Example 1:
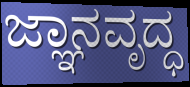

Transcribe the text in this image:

ಜ್ಞಾನವೃದ್ಧ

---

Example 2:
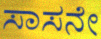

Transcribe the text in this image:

ಸಾಸನೇ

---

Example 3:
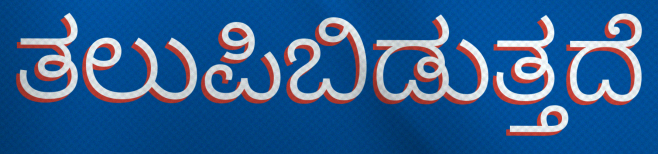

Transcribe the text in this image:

ತಲುಪಿಬಿಡುತ್ತದೆ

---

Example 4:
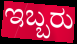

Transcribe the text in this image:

ಇಬ್ಬರು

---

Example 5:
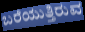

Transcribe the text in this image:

ಬರೆಯುತ್ತಿರುವ